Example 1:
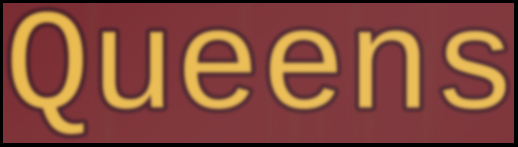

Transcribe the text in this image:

Queens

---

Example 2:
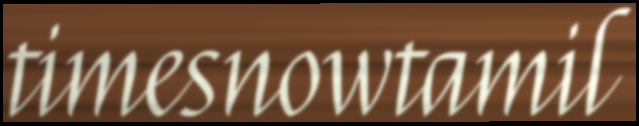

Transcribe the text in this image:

timesnowtamil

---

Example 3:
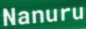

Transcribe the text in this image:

Nanuru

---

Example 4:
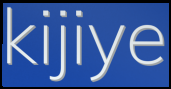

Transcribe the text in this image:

kijiye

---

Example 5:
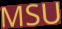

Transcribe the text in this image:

MSU